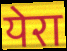
येरा